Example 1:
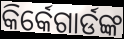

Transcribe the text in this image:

କିର୍କେଗାର୍ଡଙ୍କ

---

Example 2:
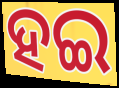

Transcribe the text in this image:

ହଇ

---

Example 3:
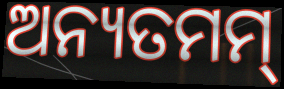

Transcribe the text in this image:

ଅନ୍ୟତମମ୍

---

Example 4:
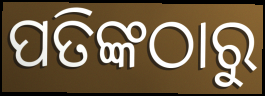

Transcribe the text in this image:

ପତିଙ୍କଠାରୁ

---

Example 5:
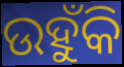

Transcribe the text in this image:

ଉହୁଁକି